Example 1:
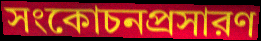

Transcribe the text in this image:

সংকোচনপ্রসারণ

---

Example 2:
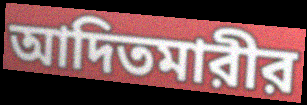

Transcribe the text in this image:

আদিতমারীর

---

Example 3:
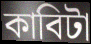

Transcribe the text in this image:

কাবিটা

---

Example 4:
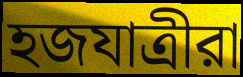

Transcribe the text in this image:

হজযাত্রীরা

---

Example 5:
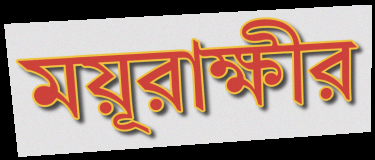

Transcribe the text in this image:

ময়ূরাক্ষীর